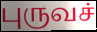
புருவச்